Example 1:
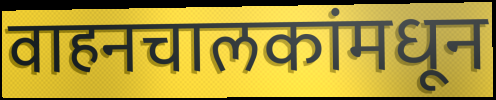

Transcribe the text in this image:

वाहनचालकांमधून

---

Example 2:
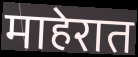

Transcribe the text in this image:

माहेरात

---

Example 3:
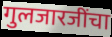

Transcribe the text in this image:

गुलजारजींचा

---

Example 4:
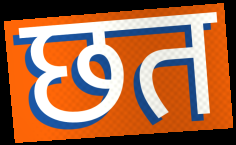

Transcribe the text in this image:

छत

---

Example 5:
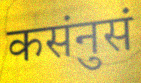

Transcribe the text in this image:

कसंनुसं